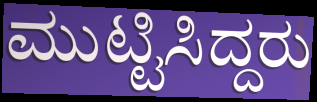
ಮುಟ್ಟಿಸಿದ್ದರು